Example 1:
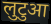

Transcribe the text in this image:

लुटुआ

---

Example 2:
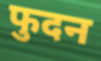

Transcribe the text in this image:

फुदन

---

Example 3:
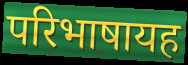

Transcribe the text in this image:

परिभाषायह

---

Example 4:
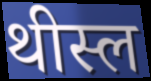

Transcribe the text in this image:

थीस्ल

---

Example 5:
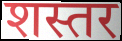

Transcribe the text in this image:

शस्तर